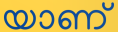
യാണ്